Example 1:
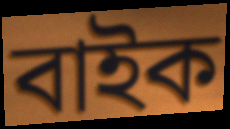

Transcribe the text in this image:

বাইক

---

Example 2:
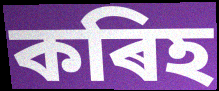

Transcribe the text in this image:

কৰিহ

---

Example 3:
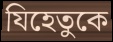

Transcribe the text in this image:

যিহেতুকে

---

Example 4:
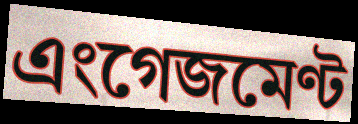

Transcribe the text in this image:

এংগেজমেণ্ট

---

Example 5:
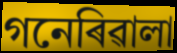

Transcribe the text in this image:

গনেৰিৱালা